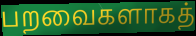
பறவைகளாகத்